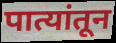
पात्यांतून